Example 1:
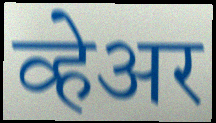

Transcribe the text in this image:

व्हेअर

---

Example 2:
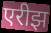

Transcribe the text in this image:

एरीझ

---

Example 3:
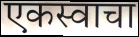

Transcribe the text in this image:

एकस्वाचा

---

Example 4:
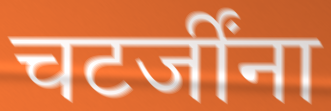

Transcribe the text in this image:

चटर्जींना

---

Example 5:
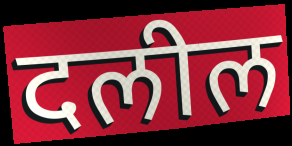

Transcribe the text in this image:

दलील